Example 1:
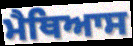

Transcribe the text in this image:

ਮੈਥਿਆਸ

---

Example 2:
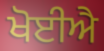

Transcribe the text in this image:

ਖੋਈਐ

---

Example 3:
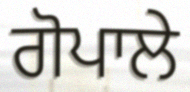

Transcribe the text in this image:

ਗੋਪਾਲੇ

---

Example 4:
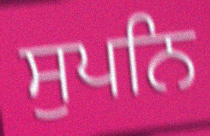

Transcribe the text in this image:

ਸੁਪਨਿ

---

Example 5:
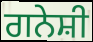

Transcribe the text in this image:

ਗਨੇਸ਼ੀ